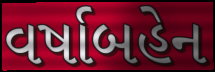
વર્ષાબહેન